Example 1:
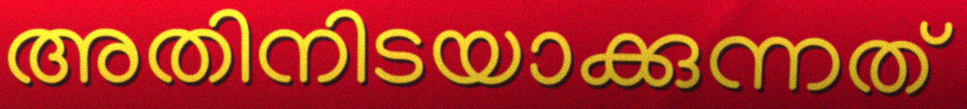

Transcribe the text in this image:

അതിനിടയാക്കുന്നത്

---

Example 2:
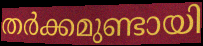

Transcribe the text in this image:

തർക്കമുണ്ടായി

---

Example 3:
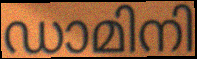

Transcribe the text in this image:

ഡാമിനി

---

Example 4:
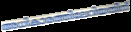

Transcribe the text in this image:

അധികാരത്തിലേറിയതിന്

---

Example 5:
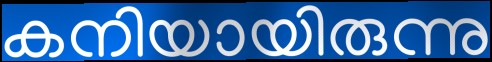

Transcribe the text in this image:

കനിയായിരുന്നു